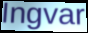
Ingvar